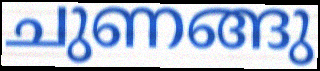
ചുണങ്ങു